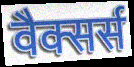
वैक्सर्स